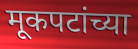
मूकपटांच्या